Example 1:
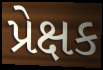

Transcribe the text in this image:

પ્રેક્ષક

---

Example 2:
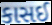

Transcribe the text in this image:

કાસઈ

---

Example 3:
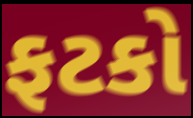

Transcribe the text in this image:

ફટકો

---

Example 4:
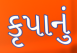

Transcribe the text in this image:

કૃપાનું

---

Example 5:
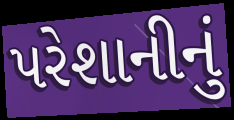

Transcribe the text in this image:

પરેશાનીનું